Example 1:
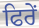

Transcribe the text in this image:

ਫਿਰੇਂ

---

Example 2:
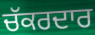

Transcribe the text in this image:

ਚੱਕਰਦਾਰ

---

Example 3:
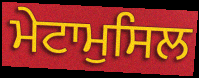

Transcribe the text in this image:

ਮੇਟਾਮੁਸਿਲ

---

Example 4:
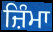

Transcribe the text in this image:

ਜ਼ਿੰਮਾ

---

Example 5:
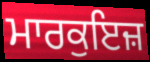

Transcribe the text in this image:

ਮਾਰਕੁਇਜ਼